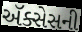
ઍક્સેસની